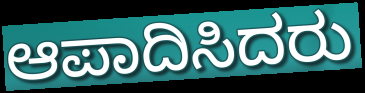
ಆಪಾದಿಸಿದರು